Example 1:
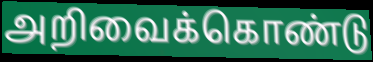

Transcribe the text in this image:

அறிவைக்கொண்டு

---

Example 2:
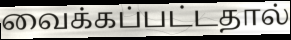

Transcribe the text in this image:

வைக்கப்பட்டதால்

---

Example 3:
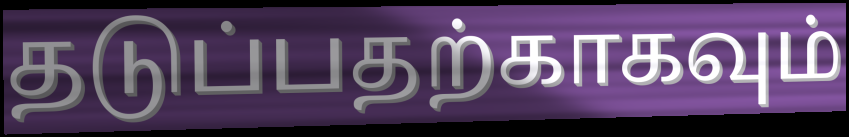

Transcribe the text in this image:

தடுப்பதற்காகவும்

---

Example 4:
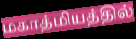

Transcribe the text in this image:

மகாத்மியத்தில்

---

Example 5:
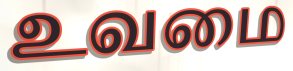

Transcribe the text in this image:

உவமை